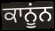
ਕਾਨੂਂਨ